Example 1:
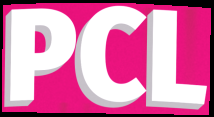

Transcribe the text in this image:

PCL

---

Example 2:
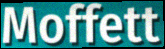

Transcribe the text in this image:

Moffett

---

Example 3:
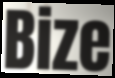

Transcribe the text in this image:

Bize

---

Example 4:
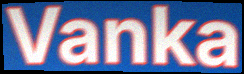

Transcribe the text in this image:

Vanka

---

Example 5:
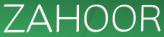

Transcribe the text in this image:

ZAHOOR